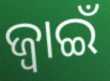
ଜ୍ଵାଇଁ